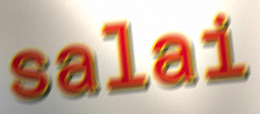
salai